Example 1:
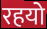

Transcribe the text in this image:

रहयो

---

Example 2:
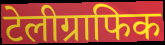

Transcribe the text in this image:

टेलीग्राफिक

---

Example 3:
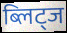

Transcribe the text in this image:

ब्लिट्ज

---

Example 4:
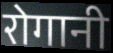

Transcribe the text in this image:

रोगानी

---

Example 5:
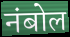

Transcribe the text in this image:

नंबोल